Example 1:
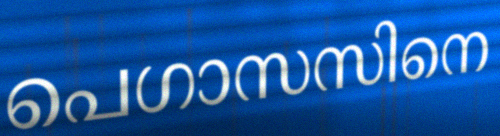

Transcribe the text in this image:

പെഗാസസിനെ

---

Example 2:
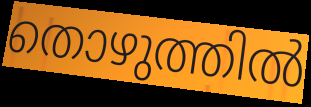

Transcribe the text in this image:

തൊഴുത്തിൽ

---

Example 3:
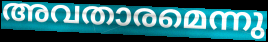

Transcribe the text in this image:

അവതാരമെന്നു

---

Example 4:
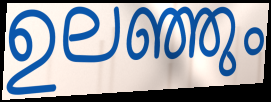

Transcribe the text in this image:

ഉലഞ്ഞും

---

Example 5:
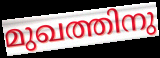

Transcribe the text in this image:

മുഖത്തിനു